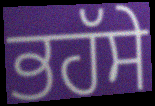
ਭਹੱਸੇ